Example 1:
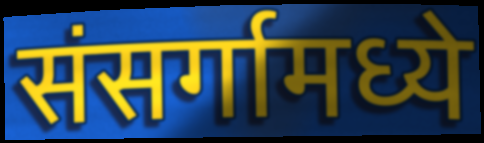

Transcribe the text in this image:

संसर्गामध्ये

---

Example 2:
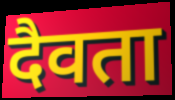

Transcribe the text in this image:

दैवता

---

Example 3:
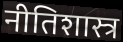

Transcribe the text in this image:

नीतिशास्त्र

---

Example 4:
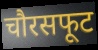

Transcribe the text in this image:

चौरसफूट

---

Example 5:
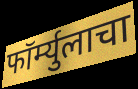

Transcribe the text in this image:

फॉर्म्युलाचा